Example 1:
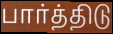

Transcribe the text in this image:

பார்த்திடு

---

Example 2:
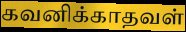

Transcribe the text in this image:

கவனிக்காதவள்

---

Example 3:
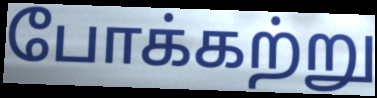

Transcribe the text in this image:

போக்கற்று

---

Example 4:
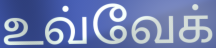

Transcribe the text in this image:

உவ்வேக்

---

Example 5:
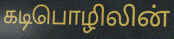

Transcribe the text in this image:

கடிபொழிலின்